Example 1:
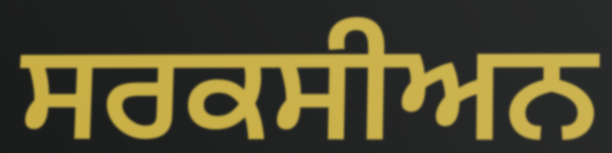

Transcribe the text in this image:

ਸਰਕਸੀਅਨ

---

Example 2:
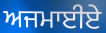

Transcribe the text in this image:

ਅਜਮਾਈਏ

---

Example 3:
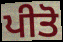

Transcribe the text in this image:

ਪੀਤੋ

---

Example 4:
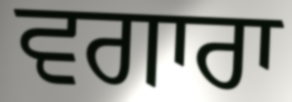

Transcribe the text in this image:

ਵਗਾਰਾ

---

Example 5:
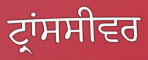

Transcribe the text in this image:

ਟ੍ਰਾਂਸਸੀਵਰ